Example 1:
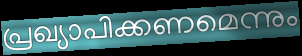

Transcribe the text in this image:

പ്രഖ്യാപിക്കണമെന്നും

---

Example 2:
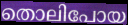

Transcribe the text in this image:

തൊലിപോയ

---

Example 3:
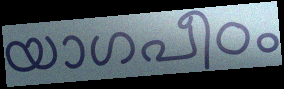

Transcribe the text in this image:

യാഗപീഠം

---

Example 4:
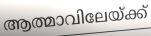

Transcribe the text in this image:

ആത്മാവിലേയ്ക്ക്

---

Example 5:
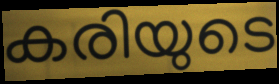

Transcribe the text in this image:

കരിയുടെ